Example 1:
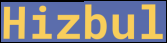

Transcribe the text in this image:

Hizbul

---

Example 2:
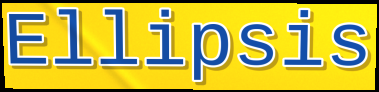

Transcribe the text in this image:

Ellipsis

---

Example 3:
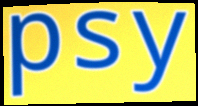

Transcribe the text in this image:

psy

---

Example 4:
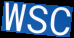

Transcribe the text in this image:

WSC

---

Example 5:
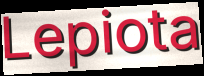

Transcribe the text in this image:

Lepiota